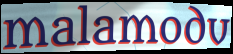
malamodu